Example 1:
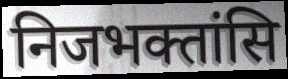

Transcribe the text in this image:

निजभक्तांसि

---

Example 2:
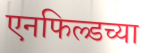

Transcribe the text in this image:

एनफिल्डच्या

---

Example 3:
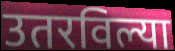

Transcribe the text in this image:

उतरविल्या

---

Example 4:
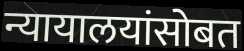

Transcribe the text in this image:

न्यायालयांसोबत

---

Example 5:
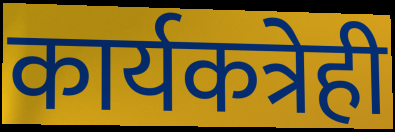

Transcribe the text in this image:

कार्यकत्रेही